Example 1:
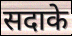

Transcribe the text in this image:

सदाके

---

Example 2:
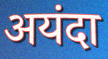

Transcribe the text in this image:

अयंदा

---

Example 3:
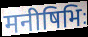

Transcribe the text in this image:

मनीषिभिः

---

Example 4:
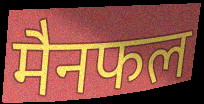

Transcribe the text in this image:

मैनफल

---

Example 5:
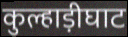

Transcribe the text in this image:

कुल्हाड़ीघाट